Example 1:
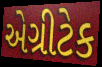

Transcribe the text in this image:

એગ્રીટેક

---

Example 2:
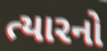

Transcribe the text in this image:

ત્યારનો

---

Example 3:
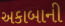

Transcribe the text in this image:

અકાબાની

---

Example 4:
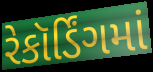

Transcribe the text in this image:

રેકૉર્ડિંગમાં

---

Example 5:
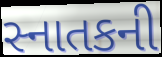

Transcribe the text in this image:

સ્નાતકની